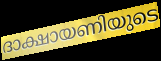
ദാക്ഷായണിയുടെ